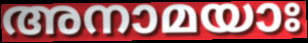
അനാമയാഃ